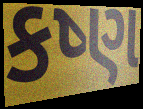
કષ્ણ